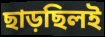
ছাড়ছিলই